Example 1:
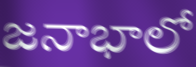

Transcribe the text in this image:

జనాభాలో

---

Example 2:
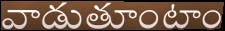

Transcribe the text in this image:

వాడుతూంటాం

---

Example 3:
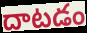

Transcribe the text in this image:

దాటడం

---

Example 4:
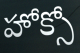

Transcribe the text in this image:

హోక్సో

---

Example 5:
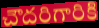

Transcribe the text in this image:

చౌదరిగారికి